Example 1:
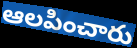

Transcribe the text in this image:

ఆలపించారు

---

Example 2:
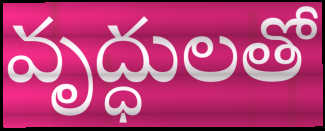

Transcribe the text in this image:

వృద్ధులతో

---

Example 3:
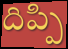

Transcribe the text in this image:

దిప్పి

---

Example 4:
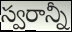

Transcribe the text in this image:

స్వరాన్నీ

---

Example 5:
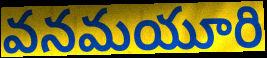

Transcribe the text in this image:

వనమయూరి